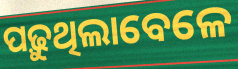
ପଢ଼ୁଥିଲାବେଳେ